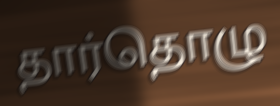
தார்தொழு